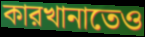
কারখানাতেও